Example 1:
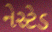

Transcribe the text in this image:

નેસ્ટેડ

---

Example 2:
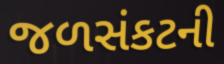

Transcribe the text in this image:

જળસંકટની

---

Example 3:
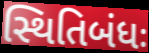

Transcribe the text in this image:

સ્થિતિબંધઃ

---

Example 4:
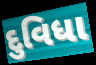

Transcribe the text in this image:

દુવિધા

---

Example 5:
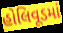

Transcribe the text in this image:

હોલિવૂડમાં